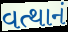
વત્થાનં